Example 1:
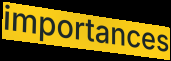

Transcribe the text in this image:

importances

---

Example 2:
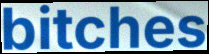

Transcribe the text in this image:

bitches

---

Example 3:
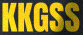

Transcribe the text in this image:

KKGSS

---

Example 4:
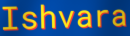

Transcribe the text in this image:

Ishvara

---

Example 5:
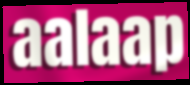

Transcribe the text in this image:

aalaap